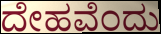
ದೇಹವೆಂದು